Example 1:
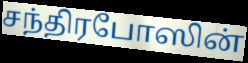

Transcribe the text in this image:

சந்திரபோஸின்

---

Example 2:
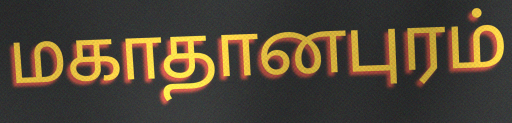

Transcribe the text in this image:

மகாதானபுரம்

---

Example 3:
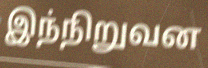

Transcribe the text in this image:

இந்நிறுவன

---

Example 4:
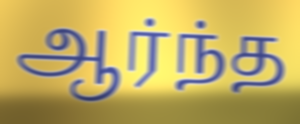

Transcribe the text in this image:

ஆர்ந்த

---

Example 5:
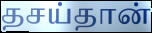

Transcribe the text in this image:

தசய்தான்